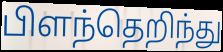
பிளந்தெறிந்து